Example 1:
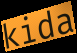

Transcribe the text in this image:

kida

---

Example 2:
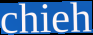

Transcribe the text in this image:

chieh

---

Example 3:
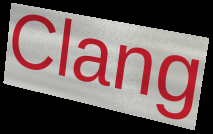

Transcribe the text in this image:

Clang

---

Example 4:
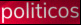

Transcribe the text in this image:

politicos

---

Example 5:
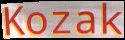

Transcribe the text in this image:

Kozak